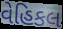
વેહિકલ